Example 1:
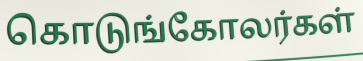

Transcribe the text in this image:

கொடுங்கோலர்கள்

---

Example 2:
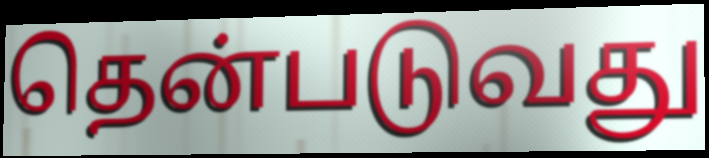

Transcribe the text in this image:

தென்படுவது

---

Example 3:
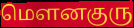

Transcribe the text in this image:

மௌனகுரு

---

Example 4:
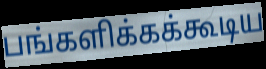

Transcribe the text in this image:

பங்களிக்கக்கூடிய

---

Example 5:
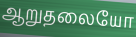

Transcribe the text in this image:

ஆறுதலையோ